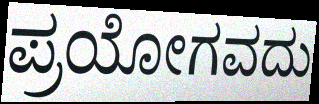
ಪ್ರಯೋಗವದು